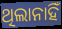
ଥିଲାନାହିଁ